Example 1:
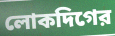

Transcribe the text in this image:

লোকদিগের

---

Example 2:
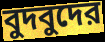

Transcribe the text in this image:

বুদবুদের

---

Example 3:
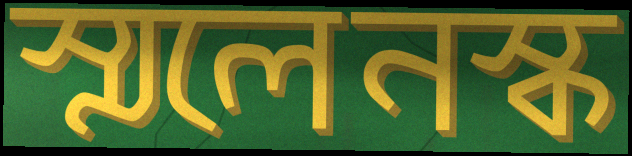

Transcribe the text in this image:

স্মলেনস্ক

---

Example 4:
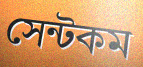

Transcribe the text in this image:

সেন্টকম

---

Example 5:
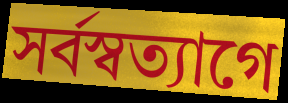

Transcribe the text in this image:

সর্বস্বত্যাগে